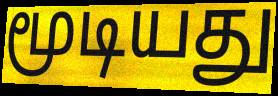
மூடியது